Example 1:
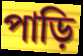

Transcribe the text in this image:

পাড়ি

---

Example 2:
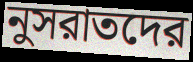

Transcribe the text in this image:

নুসরাতদের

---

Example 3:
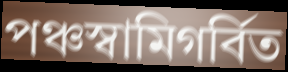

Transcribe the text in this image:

পঞ্চস্বামিগর্বিত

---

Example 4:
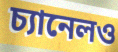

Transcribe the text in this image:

চ্যানেলও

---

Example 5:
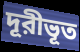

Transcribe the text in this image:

দূরীভূত